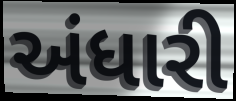
અંધારી